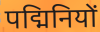
पद्मिनियों